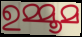
ഉമ്മൂമ